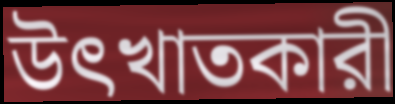
উৎখাতকারী